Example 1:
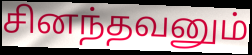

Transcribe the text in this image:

சினந்தவனும்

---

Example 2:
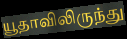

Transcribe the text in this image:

யூதாவிலிருந்து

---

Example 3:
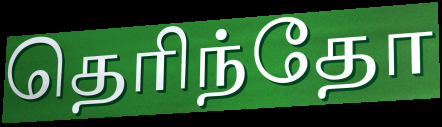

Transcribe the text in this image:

தெரிந்தோ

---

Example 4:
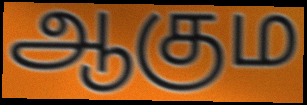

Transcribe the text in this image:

ஆகும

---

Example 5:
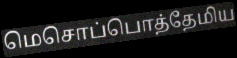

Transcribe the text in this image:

மெசொப்பொத்தேமிய